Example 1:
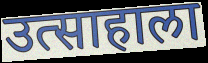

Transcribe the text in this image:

उत्साहाला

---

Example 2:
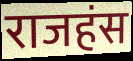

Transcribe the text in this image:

राजहंस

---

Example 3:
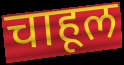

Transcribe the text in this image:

चाहूल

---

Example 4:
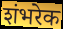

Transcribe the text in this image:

शंभरेक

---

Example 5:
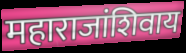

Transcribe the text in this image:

महाराजांशिवाय